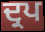
ਦ੍ਰਪ